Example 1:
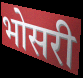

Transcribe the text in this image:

भोसरी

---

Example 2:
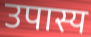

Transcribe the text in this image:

उपास्य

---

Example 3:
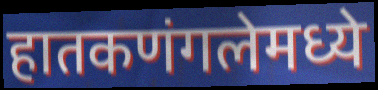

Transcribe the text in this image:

हातकणंगलेमध्ये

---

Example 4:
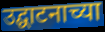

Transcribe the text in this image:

उद्घाटनाच्या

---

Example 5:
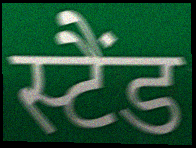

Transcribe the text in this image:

स्टैंड